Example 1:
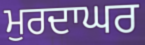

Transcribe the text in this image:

ਮੁਰਦਾਘਰ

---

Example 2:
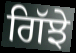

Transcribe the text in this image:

ਗਿੱਝੇ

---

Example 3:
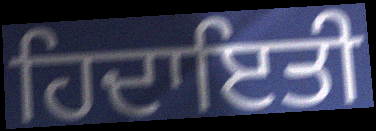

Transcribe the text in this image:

ਹਿਦਾਇਤੀ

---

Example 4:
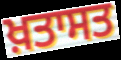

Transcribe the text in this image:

ਖ਼ਤਾਸਤ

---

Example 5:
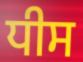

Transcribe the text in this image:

ਧੀਸ